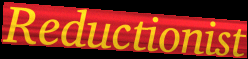
Reductionist